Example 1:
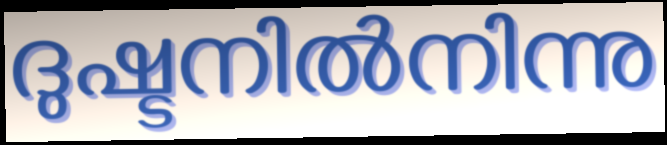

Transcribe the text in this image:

ദുഷ്ടനിൽനിന്നു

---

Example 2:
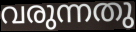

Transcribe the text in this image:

വരുന്നതു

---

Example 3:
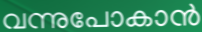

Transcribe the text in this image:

വന്നുപോകാൻ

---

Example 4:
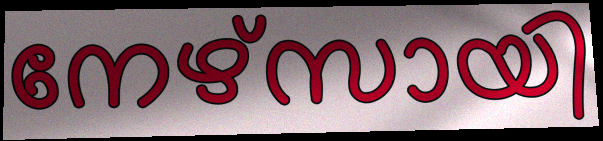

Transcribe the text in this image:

നേഴ്സായി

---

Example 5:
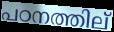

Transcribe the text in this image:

പഠനത്തില്